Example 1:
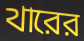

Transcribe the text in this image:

থারের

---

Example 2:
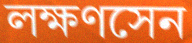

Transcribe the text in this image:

লক্ষণসেন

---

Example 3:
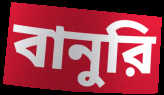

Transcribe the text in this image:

বানুরি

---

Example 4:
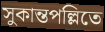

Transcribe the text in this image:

সুকান্তপল্লিতে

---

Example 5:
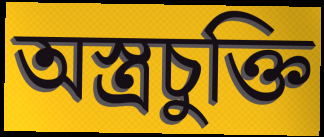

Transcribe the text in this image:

অস্ত্রচুক্তি